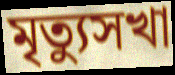
মৃত্যুসখা